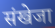
संखेजा